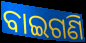
ବାଇଗଣି